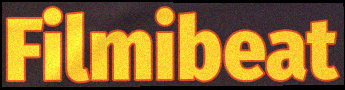
Filmibeat